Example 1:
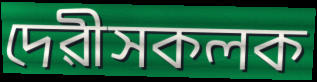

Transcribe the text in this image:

দেৱীসকলক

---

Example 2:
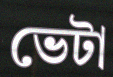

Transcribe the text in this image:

ভেটা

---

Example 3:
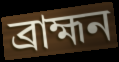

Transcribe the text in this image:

ব্ৰাহ্মন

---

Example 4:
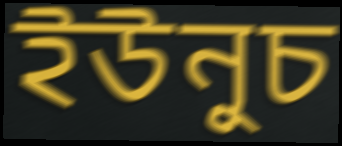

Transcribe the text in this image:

ইউনুচ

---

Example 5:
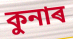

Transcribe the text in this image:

কুনাৰ